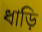
ধাড়ি